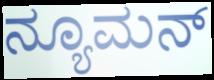
ನ್ಯೂಮನ್